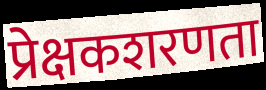
प्रेक्षकशरणता